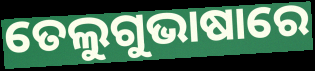
ତେଲୁଗୁଭାଷାରେ